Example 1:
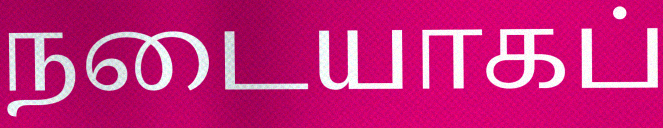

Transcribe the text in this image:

நடையாகப்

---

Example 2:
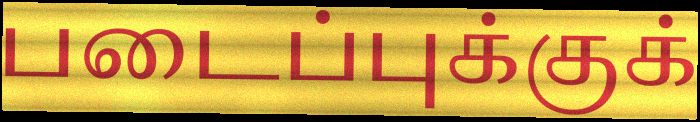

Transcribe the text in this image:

படைப்புக்குக்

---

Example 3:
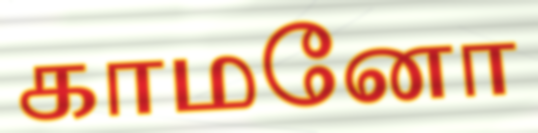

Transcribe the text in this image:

காமனோ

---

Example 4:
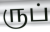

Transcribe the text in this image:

ருப்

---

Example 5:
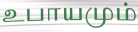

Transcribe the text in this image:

உபாயமும்